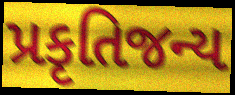
પ્રકૃતિજન્ય